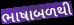
ભાષાબળથી